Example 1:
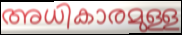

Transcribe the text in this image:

അധികാരമുള്ള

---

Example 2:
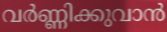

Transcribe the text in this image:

വർണ്ണിക്കുവാൻ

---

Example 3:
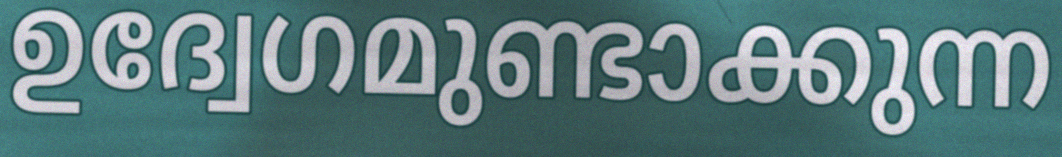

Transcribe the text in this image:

ഉദ്വേഗമുണ്ടാക്കുന്ന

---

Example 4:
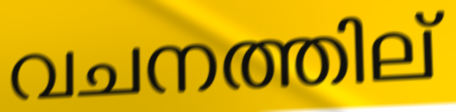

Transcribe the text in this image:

വചനത്തില്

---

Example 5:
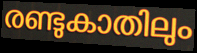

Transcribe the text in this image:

രണ്ടുകാതിലും